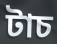
টাচ